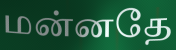
மன்னதே